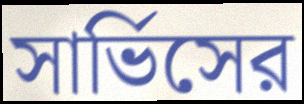
সার্ভিসের